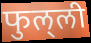
फुल्ली